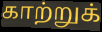
காற்றுக்